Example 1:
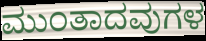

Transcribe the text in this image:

ಮುಂತಾದವುಗಳ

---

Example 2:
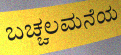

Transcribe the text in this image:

ಬಚ್ಚಲಮನೆಯ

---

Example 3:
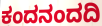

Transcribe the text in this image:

ಕಂದನಂದದಿ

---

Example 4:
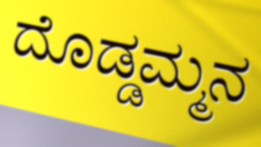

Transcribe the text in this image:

ದೊಡ್ಡಮ್ಮನ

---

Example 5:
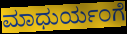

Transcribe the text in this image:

ಮಾಧುರ್ಯಂಗೆ